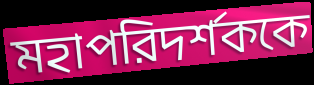
মহাপরিদর্শককে